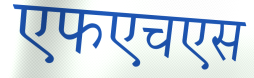
एफएचएस